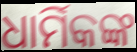
ଧାର୍ମିକଙ୍କ